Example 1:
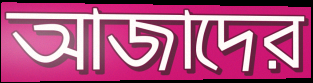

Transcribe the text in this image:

আজাদের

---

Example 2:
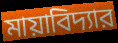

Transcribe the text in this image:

মায়াবিদ্যার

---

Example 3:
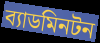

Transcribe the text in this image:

ব্যাডমিনটন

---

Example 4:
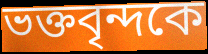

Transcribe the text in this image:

ভক্তবৃন্দকে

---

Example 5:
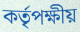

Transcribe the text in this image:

কর্তৃপক্ষীয়